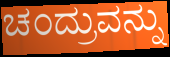
ಚಂದ್ರುವನ್ನು